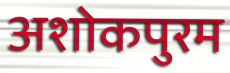
अशोकपुरम